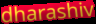
dharashiv